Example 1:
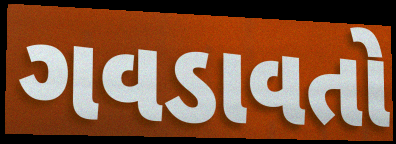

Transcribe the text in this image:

ગવડાવતો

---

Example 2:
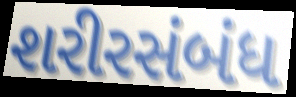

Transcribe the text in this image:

શરીરસંબંધ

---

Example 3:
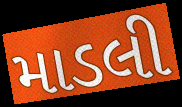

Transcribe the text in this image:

માડલી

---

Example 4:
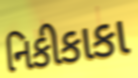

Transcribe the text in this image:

નિકીકાકા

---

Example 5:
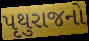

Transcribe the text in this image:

પૃથુરાજનો